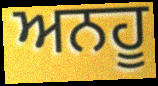
ਅਨਹੂ